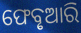
ଫେବୃଆରି